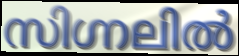
സിഗ്നലിൽ